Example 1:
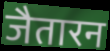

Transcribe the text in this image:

जैतारन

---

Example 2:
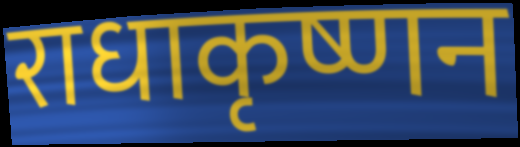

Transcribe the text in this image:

राधाकृष्णन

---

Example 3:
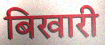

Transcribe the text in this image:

बिखारी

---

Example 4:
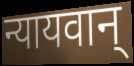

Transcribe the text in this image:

न्यायवान्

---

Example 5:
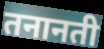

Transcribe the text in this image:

तनानती